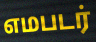
எமபடர்